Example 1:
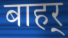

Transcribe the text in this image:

बाहर्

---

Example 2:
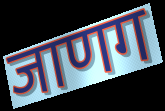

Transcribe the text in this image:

जाणग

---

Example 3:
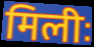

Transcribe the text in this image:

मिलीः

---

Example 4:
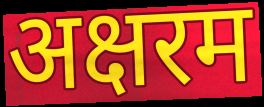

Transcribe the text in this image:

अक्षरम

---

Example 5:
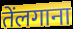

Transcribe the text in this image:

तेंलगाना